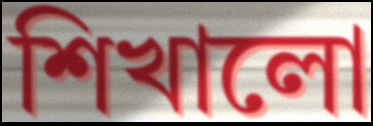
শিখালো